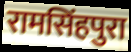
रामसिंहपुरा